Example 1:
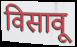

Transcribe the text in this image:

विसावू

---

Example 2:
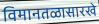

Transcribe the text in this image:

विमानतळासारखे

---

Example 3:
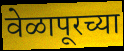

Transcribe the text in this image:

वेळापूरच्या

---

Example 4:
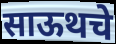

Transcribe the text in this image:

साऊथचे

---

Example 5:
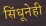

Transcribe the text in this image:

सिंधूनेही